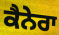
ਕੈਨੇਰਾ